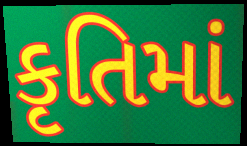
કૃતિમાં